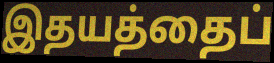
இதயத்தைப்